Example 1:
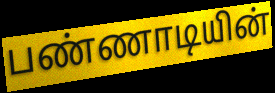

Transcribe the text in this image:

பண்ணாடியின்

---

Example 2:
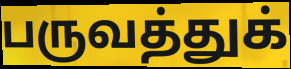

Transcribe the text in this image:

பருவத்துக்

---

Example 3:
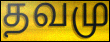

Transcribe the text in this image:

தவமு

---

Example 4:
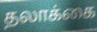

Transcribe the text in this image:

தலாக்கை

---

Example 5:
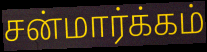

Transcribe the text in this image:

சன்மார்க்கம்